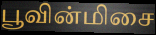
பூவின்மிசை